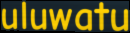
uluwatu